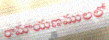
రామాయణములలో